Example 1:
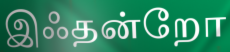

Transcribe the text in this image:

இஃதன்றோ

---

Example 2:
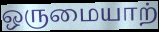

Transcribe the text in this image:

ஒருமையாற்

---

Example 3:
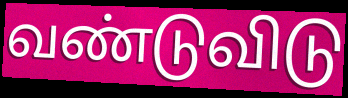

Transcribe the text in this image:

வண்டுவிடு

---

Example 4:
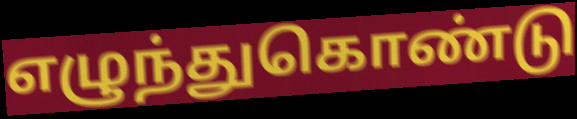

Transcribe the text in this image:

எழுந்துகொண்டு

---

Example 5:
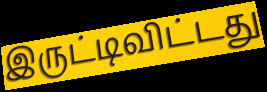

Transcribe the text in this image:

இருட்டிவிட்டது